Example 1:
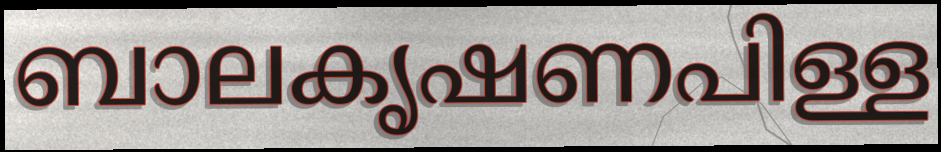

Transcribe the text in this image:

ബാലകൃഷണപിള്ള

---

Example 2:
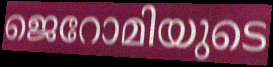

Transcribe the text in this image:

ജെറോമിയുടെ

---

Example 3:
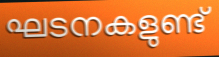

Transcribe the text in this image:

ഘടനകളുണ്ട്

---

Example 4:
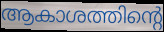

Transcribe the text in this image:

ആകാശത്തിന്റെ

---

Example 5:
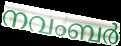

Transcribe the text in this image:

നവംബർ